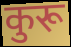
कुरू